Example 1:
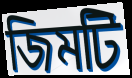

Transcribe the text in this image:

জিমটি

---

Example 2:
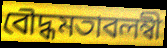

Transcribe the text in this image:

বৌদ্ধমতাবলম্বী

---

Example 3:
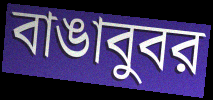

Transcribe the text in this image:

বাঙাবুবর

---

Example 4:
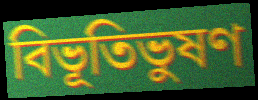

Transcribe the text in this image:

বিভূতিভুষণ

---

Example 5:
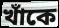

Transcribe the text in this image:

খাঁকে